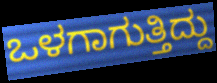
ಒಳಗಾಗುತ್ತಿದ್ದು